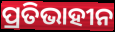
ପ୍ରତିଭାହୀନ